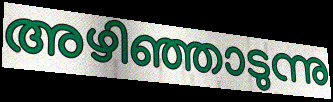
അഴിഞ്ഞാടുന്നു